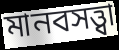
মানবসত্ত্বা